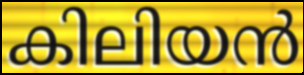
കിലിയൻ